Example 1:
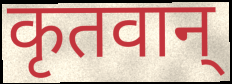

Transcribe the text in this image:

कृतवान्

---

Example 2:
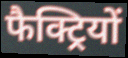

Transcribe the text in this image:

फैक्ट्रियों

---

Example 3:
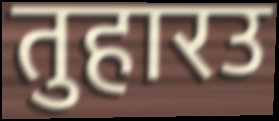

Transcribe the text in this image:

तुहारउ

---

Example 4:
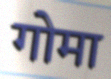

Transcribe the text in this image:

गोमा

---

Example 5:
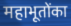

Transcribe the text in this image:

महाभूतोंका